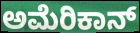
ಅಮೆರಿಕಾನ್